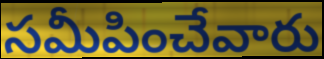
సమీపించేవారు